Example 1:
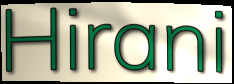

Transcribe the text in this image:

Hirani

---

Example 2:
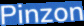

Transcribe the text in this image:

Pinzon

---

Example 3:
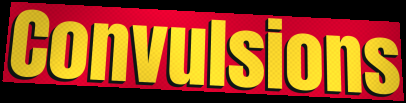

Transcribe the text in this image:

Convulsions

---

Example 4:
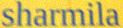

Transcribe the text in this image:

sharmila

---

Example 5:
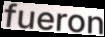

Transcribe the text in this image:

fueron